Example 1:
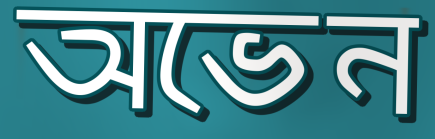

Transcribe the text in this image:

অভেন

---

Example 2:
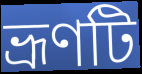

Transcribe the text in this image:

ভ্রূণটি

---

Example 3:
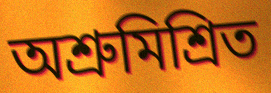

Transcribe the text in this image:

অশ্রুমিশ্রিত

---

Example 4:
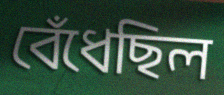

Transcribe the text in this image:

বেঁধেছিল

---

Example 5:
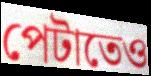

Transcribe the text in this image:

পেটাতেও